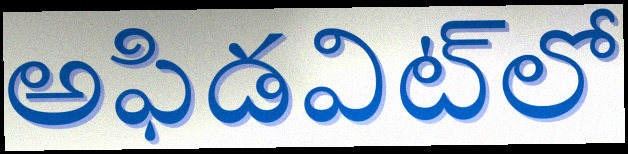
అఫిడవిట్‌లో